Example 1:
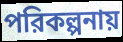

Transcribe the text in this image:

পরিকল্পনায়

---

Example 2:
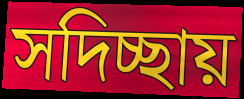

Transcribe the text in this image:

সদিচ্ছায়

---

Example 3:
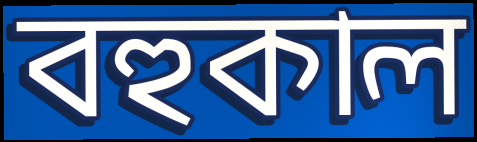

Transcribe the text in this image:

বহুকাল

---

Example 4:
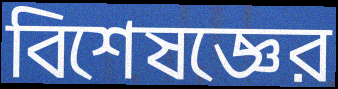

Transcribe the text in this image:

বিশেষজ্ঞের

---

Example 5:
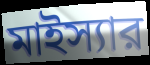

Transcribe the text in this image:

মাইস্যার